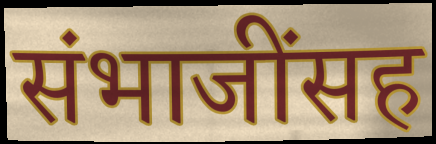
संभाजींसह